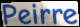
Peirre